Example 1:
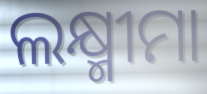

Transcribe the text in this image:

ଲକ୍ଷ୍ମୀମା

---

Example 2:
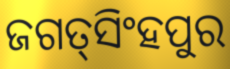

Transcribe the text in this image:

ଜଗତ୍‌ସିଂହପୁର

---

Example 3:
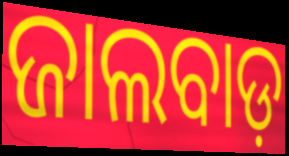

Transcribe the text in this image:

ଜାଲବାଡ଼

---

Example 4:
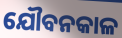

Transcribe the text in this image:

ଯୌବନକାଳ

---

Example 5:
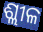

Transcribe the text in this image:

ଶ୍ଲୀଳ